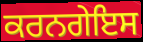
ਕਰਨਗੇਇਸ